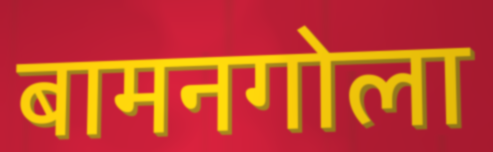
बामनगोला